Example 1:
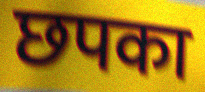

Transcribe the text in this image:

छपका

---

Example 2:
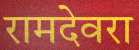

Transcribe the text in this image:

रामदेवरा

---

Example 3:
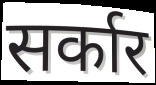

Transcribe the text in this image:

सर्कार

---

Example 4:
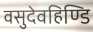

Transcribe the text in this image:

वसुदेवहिण्डि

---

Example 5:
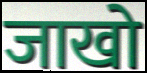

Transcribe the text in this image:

जाखो